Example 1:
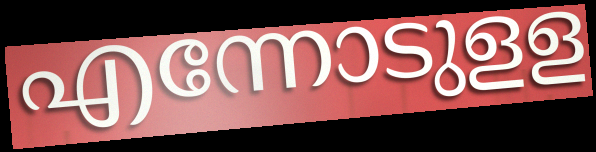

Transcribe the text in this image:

എന്നോടുളള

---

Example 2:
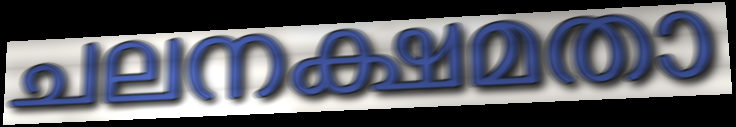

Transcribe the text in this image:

ചലനക്ഷമതാ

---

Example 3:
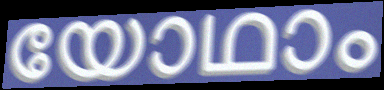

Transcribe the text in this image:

യോഥാം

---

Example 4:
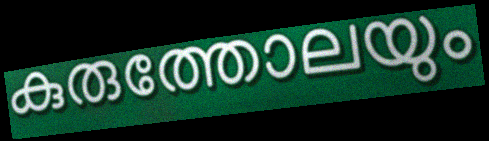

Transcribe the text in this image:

കുരുത്തോലയും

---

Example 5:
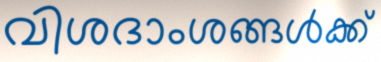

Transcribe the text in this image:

വിശദാംശങ്ങൾക്ക്